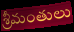
శ్రీమంతులు